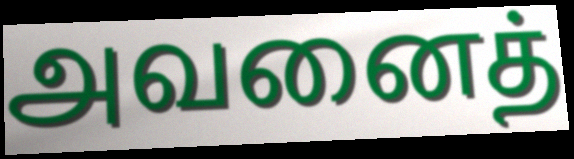
அவனைத்